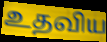
உதவிய